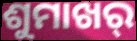
ଶୁମାଖର୍